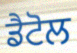
ਡੈਟੋਲ